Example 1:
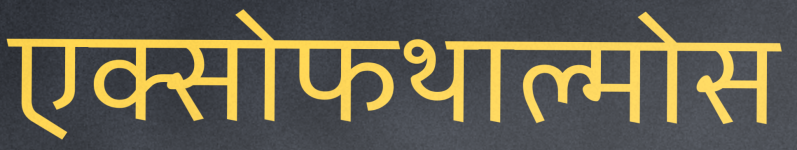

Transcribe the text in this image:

एक्सोफथाल्मोस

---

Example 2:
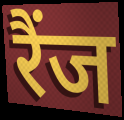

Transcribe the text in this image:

रैंज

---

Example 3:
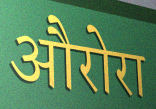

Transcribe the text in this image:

औरोरा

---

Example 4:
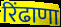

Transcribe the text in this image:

रिंढाणा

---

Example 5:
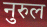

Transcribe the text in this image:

नुरुल